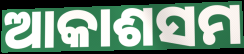
ଆକାଶସମ